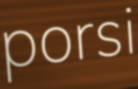
porsi